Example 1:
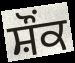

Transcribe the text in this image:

ਸ਼ੌੰਕ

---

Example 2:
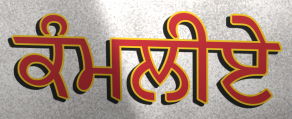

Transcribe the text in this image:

ਕੰਮਲੀਏ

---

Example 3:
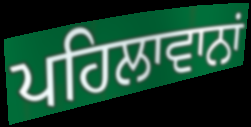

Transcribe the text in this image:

ਪਹਿਲਾਵਾਨਾਂ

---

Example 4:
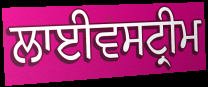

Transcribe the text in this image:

ਲਾਈਵਸਟ੍ਰੀਮ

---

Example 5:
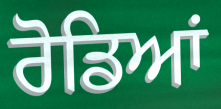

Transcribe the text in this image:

ਰੋਡਿਆਂ